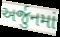
અર્જુનમાં